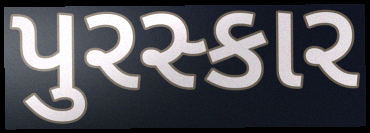
પુરસ્કાર